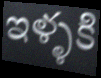
ఇళ్ళకి